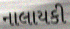
નાલાયકી